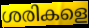
ശരികളെ